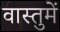
वास्तुमें